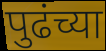
पुढंच्या